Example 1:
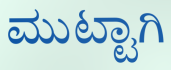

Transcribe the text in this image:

ಮುಟ್ಟಾಗಿ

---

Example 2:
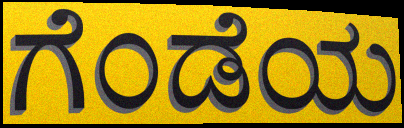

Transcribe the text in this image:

ಗೆಂಡೆಯ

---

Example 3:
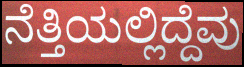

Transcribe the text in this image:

ನೆತ್ತಿಯಲ್ಲಿದ್ದೆವು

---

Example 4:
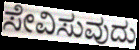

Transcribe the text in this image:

ಸೇವಿಸುವುದು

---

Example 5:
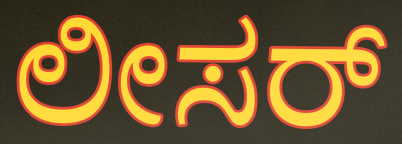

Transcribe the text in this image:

ಲೀಸರ್